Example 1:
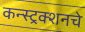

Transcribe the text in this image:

कन्स्ट्रक्शनचे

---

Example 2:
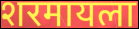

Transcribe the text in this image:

शरमायला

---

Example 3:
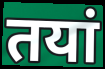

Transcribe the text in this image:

तयां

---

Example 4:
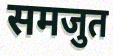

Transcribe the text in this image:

समजुत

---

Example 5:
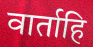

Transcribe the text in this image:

वार्ताहि